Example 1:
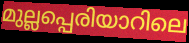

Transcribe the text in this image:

മുല്ലപ്പെരിയാറിലെ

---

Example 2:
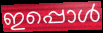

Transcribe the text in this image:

ഇപ്പൊൾ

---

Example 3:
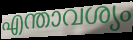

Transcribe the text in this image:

എന്താവശ്യം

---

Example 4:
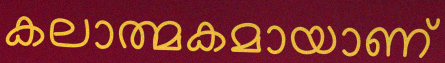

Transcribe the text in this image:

കലാത്മകമായാണ്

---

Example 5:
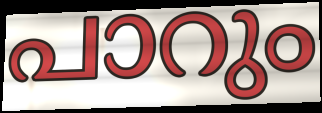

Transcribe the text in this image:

പാറും